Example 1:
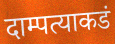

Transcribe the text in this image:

दाम्पत्याकडं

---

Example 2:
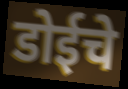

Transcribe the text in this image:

डोईचे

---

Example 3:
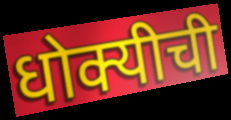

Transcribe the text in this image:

धोक्यीची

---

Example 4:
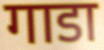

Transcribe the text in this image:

गाडा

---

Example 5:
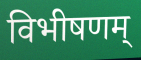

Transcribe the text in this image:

विभीषणम्